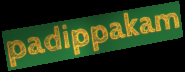
padippakam